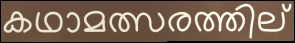
കഥാമത്സരത്തില്